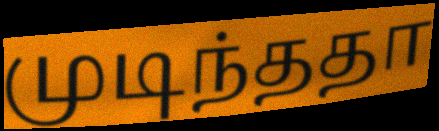
முடிந்ததா